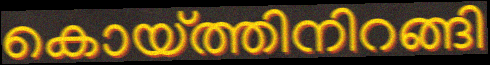
കൊയ്ത്തിനിറങ്ങി